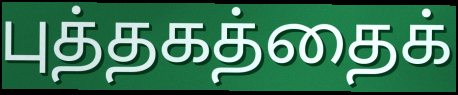
புத்தகத்தைக்